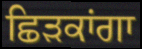
ਛਿੜਕਾਂਗਾ